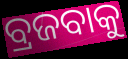
ବ୍ରଜବାକୁ